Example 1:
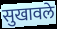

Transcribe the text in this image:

सुखावले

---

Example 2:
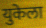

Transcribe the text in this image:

युकेला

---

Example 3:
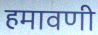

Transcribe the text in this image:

हमावणी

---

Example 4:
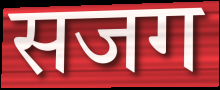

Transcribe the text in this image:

सजग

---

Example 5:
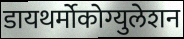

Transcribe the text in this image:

डायथर्मोकोग्युलेशन